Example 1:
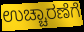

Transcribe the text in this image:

ಉಚ್ಚಾರಣೆಗೆ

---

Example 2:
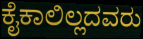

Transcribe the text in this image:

ಕೈಕಾಲಿಲ್ಲದವರು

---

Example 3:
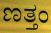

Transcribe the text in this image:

ಣತ್ತಂ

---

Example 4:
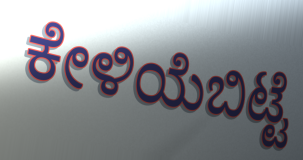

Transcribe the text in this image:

ಕೇಳಿಯೆಬಿಟ್ಟೆ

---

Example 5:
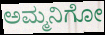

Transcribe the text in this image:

ಅಮ್ಮನಿಗೋ